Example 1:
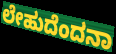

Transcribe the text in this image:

ಲೇಹುದೆಂದನಾ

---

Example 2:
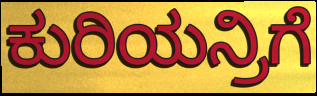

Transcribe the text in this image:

ಕುರಿಯನ್ರಿಗೆ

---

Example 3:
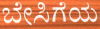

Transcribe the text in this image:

ಬೇಸಿಗೆಯ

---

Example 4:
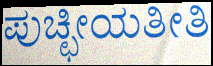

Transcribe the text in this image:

ಪುಚ್ಛೀಯತೀತಿ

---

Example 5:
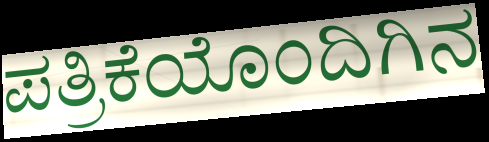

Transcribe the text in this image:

ಪತ್ರಿಕೆಯೊಂದಿಗಿನ